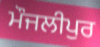
ਮੌਜਲੀਪੁਰ